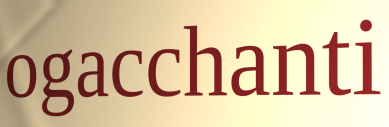
ogacchanti